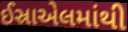
ઈસ્રાએલમાંથી